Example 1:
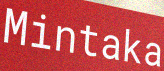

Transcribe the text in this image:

Mintaka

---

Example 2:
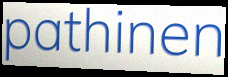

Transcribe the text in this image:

pathinen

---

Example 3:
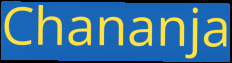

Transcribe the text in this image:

Chananja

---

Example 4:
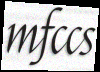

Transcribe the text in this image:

mfccs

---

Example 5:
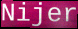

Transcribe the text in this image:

Nijer